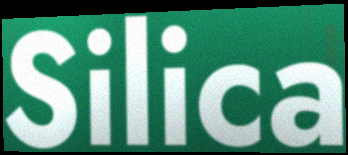
Silica